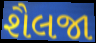
શૈલજા